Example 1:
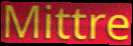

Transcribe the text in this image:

Mittre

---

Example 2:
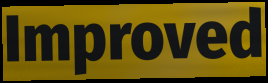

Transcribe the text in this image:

Improved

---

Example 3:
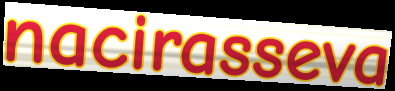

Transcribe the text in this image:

nacirasseva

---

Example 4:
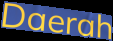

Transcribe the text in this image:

Daerah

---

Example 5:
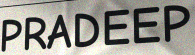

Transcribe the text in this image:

PRADEEP